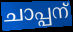
ചാപ്പന്